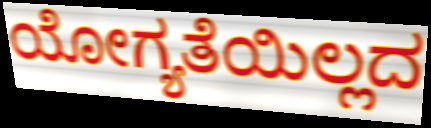
ಯೋಗ್ಯತೆಯಿಲ್ಲದ